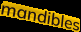
mandibles